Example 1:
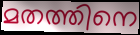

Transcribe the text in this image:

മതത്തിനെ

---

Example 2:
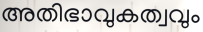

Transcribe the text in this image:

അതിഭാവുകത്വവും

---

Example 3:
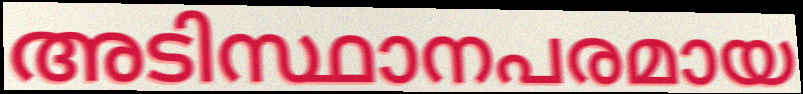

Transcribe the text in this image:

അടിസ്ഥാനപരമായ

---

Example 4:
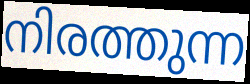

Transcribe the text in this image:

നിരത്തുന്ന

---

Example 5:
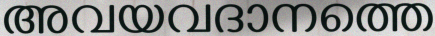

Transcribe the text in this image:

അവയവദാനത്തെ